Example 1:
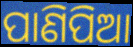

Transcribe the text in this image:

ପାଣିପିଆ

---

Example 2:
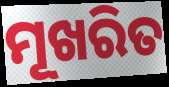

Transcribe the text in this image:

ମୂଖରିତ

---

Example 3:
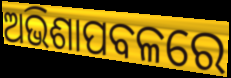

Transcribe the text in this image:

ଅଭିଶାପବଳରେ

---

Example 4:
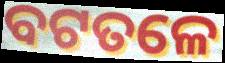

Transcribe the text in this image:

ବଟତଳେ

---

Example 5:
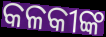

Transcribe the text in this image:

କଳକୀଙ୍କ